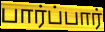
பார்ப்பார்